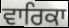
ਵਾਰਿਕਾ